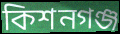
কিশনগঞ্জ